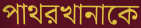
পাথরখানাকে